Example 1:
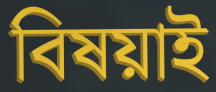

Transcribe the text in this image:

বিষয়াই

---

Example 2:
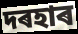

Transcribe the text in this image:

দৰহাৰ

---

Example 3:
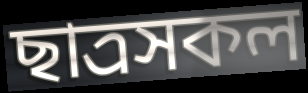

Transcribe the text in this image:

ছাত্ৰসকল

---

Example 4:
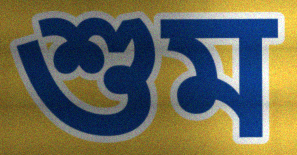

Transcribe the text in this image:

শুম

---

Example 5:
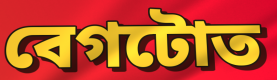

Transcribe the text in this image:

বেগটোত